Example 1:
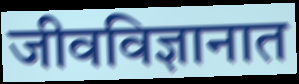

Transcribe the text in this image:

जीवविज्ञानात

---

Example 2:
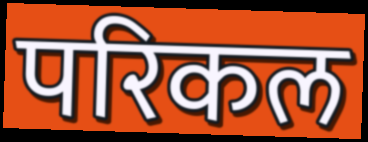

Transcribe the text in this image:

परिकल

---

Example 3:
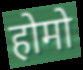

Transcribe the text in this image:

होमो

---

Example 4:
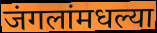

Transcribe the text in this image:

जंगलांमधल्या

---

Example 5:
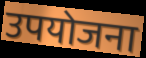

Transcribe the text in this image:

उपयोजना